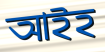
আইহ